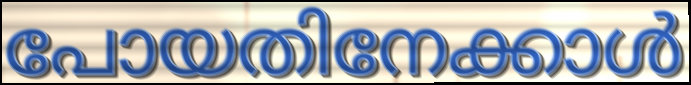
പോയതിനേക്കാൾ